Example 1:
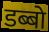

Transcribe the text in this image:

डब्बो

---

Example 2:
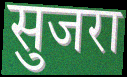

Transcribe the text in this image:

सुजरा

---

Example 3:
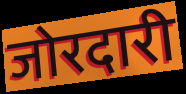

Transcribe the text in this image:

जोरदारी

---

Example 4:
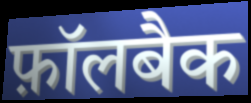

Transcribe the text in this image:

फ़ॉलबैक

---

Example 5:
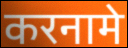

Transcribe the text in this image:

करनामे